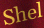
Shel